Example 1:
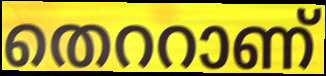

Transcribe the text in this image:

തെററാണ്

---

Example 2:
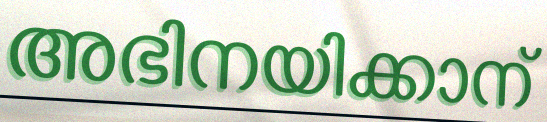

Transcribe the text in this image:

അഭിനയിക്കാന്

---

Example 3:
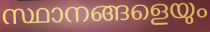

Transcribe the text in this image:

സ്ഥാനങ്ങളെയും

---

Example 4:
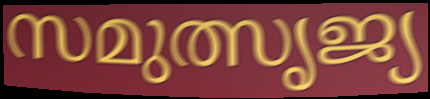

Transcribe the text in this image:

സമുത്സൃജ്യ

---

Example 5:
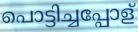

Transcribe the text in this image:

പൊട്ടിച്ചപ്പോള്